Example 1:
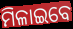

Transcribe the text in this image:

ମିଳାଇବେ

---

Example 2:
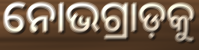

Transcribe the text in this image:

ନୋଭଗ୍ରାଡ଼କୁ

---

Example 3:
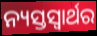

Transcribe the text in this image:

ନ୍ୟସ୍ତସ୍ଵାର୍ଥର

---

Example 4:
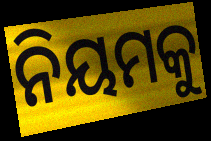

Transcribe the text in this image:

ନିୟମକୁ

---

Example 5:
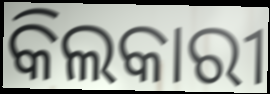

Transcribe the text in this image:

କିଲକାରୀ